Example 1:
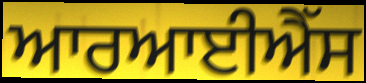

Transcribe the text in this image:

ਆਰਆਈਐੱਸ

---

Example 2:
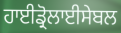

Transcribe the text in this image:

ਹਾਈਡ੍ਰੋਲਾਈਸੇਬਲ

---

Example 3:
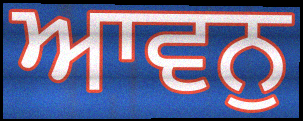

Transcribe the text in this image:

ਆਵਨੁ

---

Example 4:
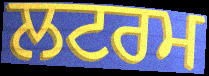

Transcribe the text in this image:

ਲਟਰਮ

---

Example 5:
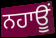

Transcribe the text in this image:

ਨਹਾਊਂ